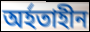
অৰ্হতাহীন